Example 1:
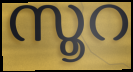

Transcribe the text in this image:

സൂറ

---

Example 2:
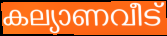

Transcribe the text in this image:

കല്യാണവീട്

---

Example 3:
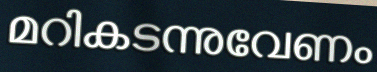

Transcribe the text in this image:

മറികടന്നുവേണം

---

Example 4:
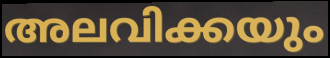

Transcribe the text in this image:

അലവിക്കയും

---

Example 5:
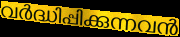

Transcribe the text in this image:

വർദ്ധിപ്പിക്കുന്നവൻ